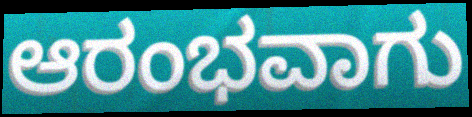
ಆರಂಭವಾಗು